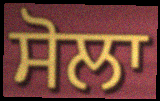
ਸੋਲਾ